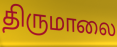
திருமாலை